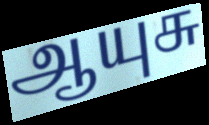
ஆயுசு